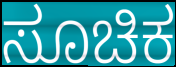
ಸೂಚಿಕ